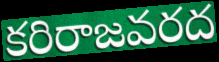
కరిరాజవరద